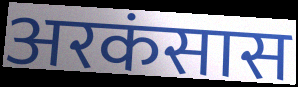
अरकंसास